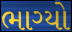
ભાગ્યો